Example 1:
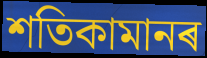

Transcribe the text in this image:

শতিকামানৰ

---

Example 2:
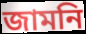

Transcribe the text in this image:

জামনি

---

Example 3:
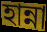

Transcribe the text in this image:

হান্না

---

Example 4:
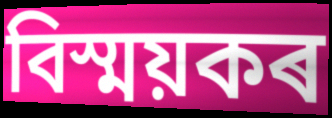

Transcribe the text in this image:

বিস্ময়কৰ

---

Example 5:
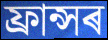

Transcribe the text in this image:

ফ্ৰান্সৰ